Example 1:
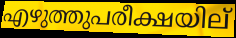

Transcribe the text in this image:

എഴുത്തുപരീക്ഷയില്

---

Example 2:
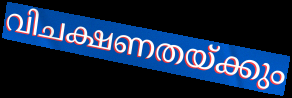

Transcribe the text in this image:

വിചക്ഷണതയ്ക്കും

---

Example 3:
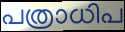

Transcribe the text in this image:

പത്രാധിപ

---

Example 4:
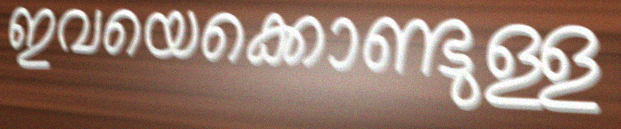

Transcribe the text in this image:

ഇവയെക്കൊണ്ടുള്ള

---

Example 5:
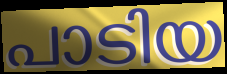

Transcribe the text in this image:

പാടിയ